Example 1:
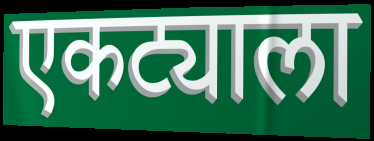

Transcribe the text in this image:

एकट्याला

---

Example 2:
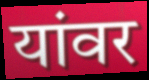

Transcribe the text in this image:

यांवर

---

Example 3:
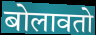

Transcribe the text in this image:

बोलावतो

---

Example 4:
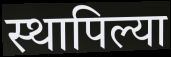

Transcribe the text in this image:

स्थापिल्या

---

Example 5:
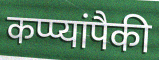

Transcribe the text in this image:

कप्प्यांपैकी